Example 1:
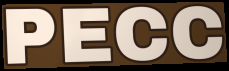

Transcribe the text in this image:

PECC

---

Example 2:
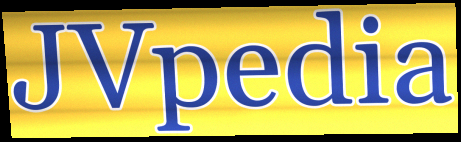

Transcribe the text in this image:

JVpedia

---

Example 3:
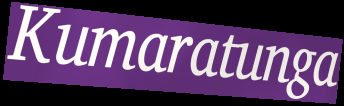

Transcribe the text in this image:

Kumaratunga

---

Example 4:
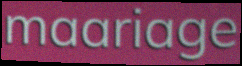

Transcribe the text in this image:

maariage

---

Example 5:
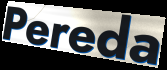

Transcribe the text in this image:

Pereda